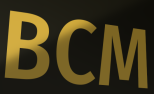
BCM